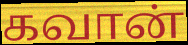
கவான்